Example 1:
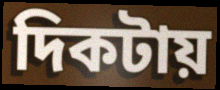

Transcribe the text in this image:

দিকটায়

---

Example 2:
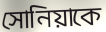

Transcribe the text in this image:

সোনিয়াকে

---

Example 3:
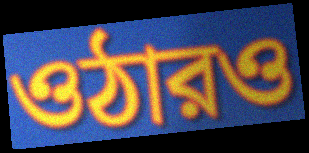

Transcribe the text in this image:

ওঠারও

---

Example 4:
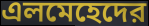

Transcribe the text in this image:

এলমেহেদের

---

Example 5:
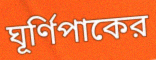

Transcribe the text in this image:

ঘূর্ণিপাকের